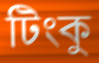
টিংকু